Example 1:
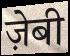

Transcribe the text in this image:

ज़ेबी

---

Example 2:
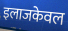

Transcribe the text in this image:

इलाजकेवल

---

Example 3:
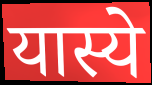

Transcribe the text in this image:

यास्ये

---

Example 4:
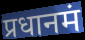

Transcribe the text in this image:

प्रधानमं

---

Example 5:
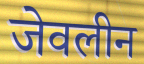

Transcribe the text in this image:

जेवलीन